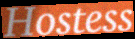
Hostess